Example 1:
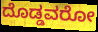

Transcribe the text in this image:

ದೊಡ್ಡವರೋ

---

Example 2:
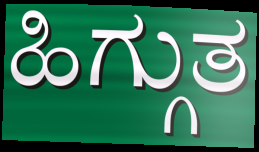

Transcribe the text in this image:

ಹಿಗ್ಗುತ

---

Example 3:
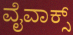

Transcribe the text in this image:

ವೈವಾಕ್ಸ್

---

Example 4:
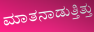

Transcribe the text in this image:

ಮಾತನಾಡುತ್ತಿತ್ತು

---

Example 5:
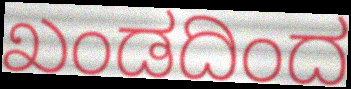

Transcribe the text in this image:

ಖಂಡದಿಂದ